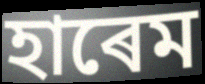
হাৰেম